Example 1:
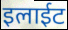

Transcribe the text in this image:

इलाईट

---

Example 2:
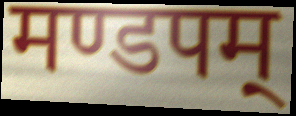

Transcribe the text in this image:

मण्डपम्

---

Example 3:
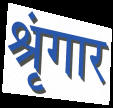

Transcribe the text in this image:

श्रृंगार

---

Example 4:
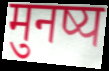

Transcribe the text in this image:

मुनष्य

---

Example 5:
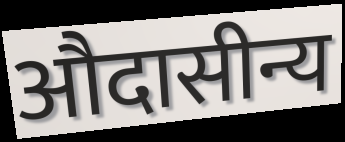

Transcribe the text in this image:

औदासीन्य